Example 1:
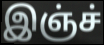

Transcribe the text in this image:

இஞ்ச்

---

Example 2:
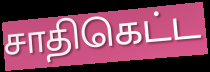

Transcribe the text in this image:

சாதிகெட்ட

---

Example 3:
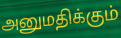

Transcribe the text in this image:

அனுமதிக்கும்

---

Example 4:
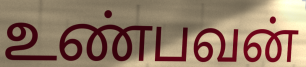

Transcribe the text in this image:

உண்பவன்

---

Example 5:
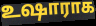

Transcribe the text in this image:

உஷாராக